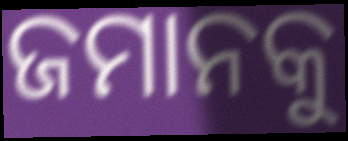
ଜମାନକୁ